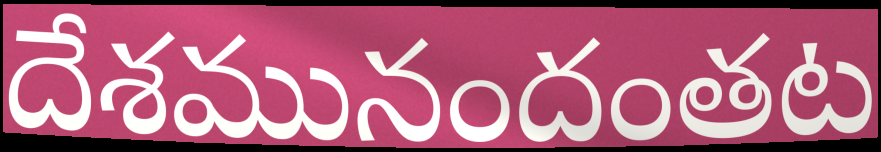
దేశమునందంతట